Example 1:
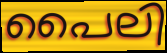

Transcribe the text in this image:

പൈലി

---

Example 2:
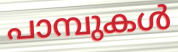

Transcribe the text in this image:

പാമ്പുകൾ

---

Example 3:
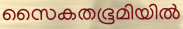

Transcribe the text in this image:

സൈകതഭൂമിയിൽ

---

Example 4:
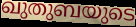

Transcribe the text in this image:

ഖുതുബയുടെ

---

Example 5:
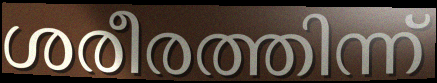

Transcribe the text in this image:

ശരീരത്തിന്ന്